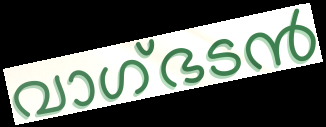
വാഗ്ഭടൻ